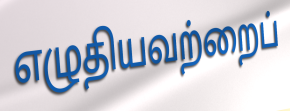
எழுதியவற்றைப்